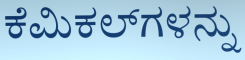
ಕೆಮಿಕಲ್‌ಗಳನ್ನು